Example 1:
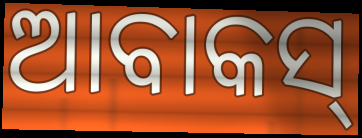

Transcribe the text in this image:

ଆବାକସ୍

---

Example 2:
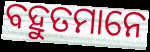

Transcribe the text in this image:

ବହୁତମାନେ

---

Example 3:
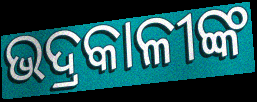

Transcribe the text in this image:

ଭଦ୍ରକାଳୀଙ୍କ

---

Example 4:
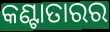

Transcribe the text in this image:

କଣ୍ଟାତାରର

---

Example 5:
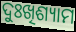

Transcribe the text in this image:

ଦୁଃଖିଶ୍ୟାମ